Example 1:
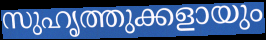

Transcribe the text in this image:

സുഹൃത്തുക്കളായും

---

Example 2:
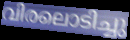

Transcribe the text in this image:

വിരലൊടിച്ചു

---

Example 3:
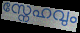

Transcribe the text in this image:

സ്നേഹവും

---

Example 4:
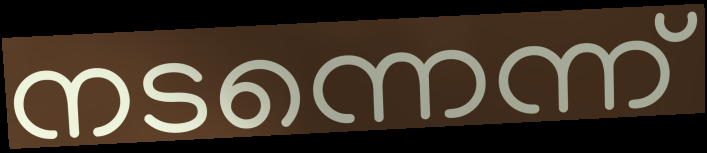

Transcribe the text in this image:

നടന്നെന്ന്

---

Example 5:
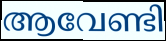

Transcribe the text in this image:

ആവേണ്ടി